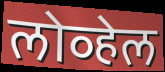
लोव्हेल